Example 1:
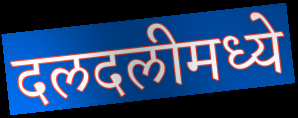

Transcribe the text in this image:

दलदलीमध्ये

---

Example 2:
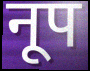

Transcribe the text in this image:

नूप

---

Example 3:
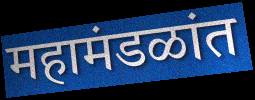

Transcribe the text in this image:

महामंडळांत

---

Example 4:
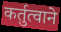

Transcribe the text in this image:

कर्तुत्वाने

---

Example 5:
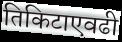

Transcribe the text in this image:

तिकिटाएवढी